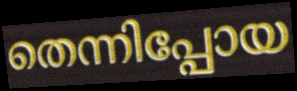
തെന്നിപ്പോയ